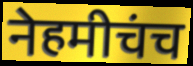
नेहमीचंच